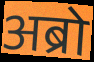
अब्रो